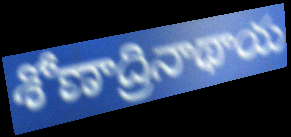
శోణాద్రినాథాయ